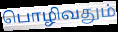
பொழிவதும்